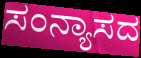
ಸಂನ್ಯಾಸದ